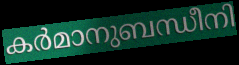
കർമാനുബന്ധീനി